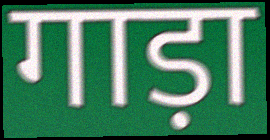
गाड़ा